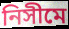
নিসীমে